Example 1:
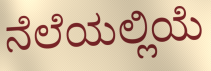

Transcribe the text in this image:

ನೆಲೆಯಲ್ಲಿಯೆ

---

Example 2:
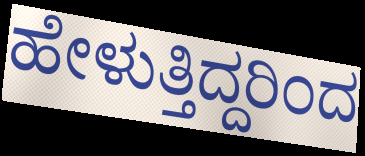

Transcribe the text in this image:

ಹೇಳುತ್ತಿದ್ದರಿಂದ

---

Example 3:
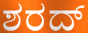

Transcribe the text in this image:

ಶರದ್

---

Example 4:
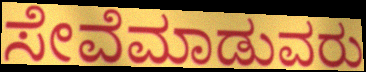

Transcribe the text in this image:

ಸೇವೆಮಾಡುವರು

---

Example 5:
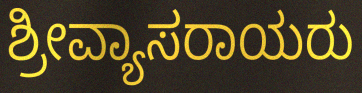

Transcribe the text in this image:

ಶ್ರೀವ್ಯಾಸರಾಯರು